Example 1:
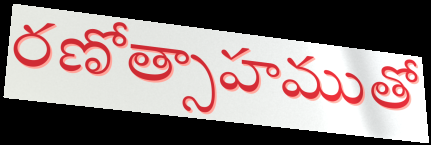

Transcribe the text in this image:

రణోత్సాహముతో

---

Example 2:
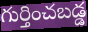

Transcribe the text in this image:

గుర్తించబడ్డ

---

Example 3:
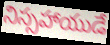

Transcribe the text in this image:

నిస్సహాయుడే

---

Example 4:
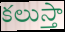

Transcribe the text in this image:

కలుస్తా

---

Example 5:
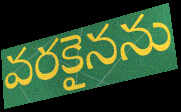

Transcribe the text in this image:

వరకైనను